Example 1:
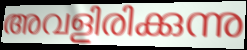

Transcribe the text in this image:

അവളിരിക്കുന്നു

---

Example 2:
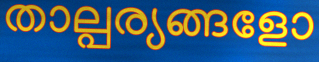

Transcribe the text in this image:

താല്പര്യങ്ങളോ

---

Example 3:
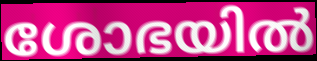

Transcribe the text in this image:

ശോഭയിൽ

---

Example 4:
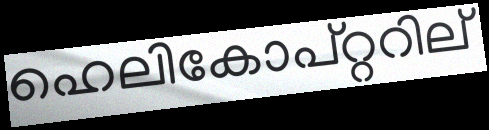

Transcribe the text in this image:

ഹെലികോപ്റ്ററില്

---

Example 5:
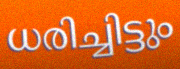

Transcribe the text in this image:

ധരിച്ചിട്ടും